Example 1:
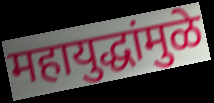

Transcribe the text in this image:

महायुद्धांमुळे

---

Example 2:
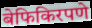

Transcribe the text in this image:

बेफिकिरपणे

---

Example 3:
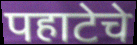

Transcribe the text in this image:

पहाटेचे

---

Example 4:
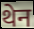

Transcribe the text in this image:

थेन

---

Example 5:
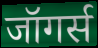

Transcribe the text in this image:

जॉगर्स